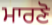
ਮਾਰਣੋ